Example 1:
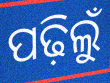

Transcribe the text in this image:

ପଢ଼ିଲୁଁ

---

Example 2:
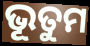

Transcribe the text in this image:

ଭୂତୁମ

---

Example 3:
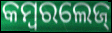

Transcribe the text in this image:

କମ୍ବରଲେଜ୍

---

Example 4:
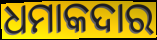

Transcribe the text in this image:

ଧମାକଦାର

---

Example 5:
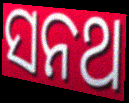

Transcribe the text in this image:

ସନଥ